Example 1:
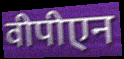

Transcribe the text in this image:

वीपीएन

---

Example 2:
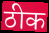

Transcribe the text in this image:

ठीक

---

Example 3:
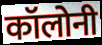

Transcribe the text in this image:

कॉलोनी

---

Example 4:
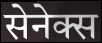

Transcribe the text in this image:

सेनेक्स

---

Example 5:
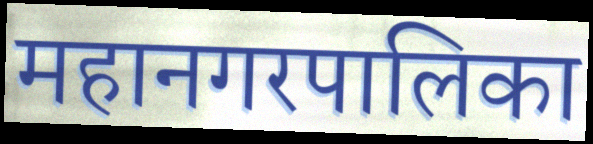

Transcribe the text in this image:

महानगरपालिका